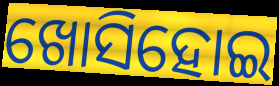
ଖୋସିହୋଇ